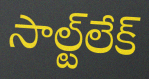
సాల్ట్‌లేక్